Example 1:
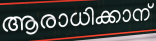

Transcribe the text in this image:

ആരാധിക്കാന്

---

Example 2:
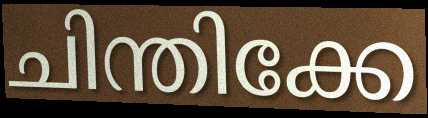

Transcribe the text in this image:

ചിന്തിക്കേ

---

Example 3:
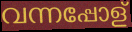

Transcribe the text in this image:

വന്നപ്പോള്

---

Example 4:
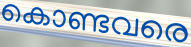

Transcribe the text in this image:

കൊണ്ടവരെ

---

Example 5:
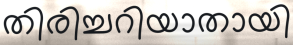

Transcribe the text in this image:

തിരിച്ചറിയാതായി